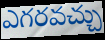
ఎగరవచ్చు